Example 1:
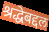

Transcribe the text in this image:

श्रद्धेबद्दल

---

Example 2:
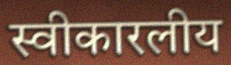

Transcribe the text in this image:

स्वीकारलीय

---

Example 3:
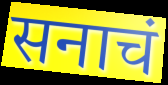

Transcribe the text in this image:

सनाचं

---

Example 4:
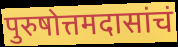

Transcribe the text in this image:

पुरुषोत्तमदासांचं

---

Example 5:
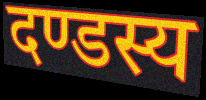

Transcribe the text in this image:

दण्डस्य